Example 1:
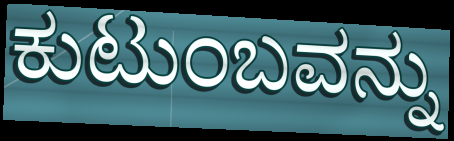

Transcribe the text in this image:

ಕುಟುಂಬವನ್ನು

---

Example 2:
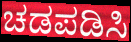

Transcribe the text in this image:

ಚಡಪಡಿಸಿ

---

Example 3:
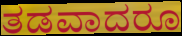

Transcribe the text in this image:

ತಡವಾದರೂ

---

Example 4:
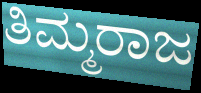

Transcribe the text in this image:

ತಿಮ್ಮರಾಜ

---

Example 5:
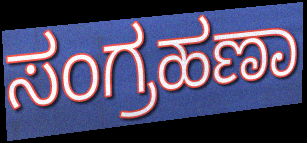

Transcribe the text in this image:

ಸಂಗ್ರಹಣಾ